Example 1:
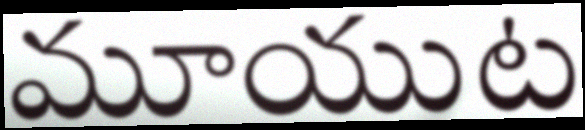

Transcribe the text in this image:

మూయుట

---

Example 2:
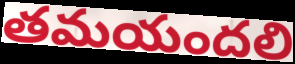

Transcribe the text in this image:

తమయందలి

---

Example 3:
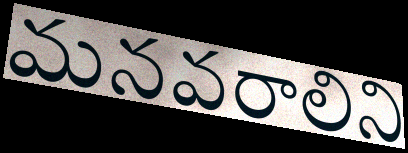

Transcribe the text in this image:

మనవరాలిని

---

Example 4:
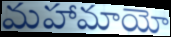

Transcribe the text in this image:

మహామాయో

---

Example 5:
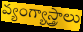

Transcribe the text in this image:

వ్యంగ్యాస్త్రాలు